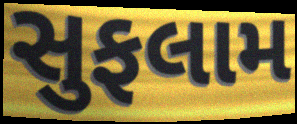
સુફલામ